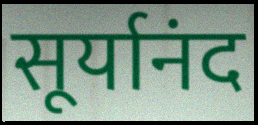
सूर्यानंद